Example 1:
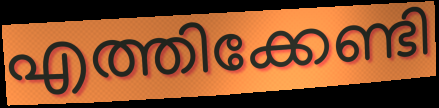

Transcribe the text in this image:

എത്തിക്കേണ്ടി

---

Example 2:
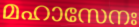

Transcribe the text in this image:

മഹാസേനഃ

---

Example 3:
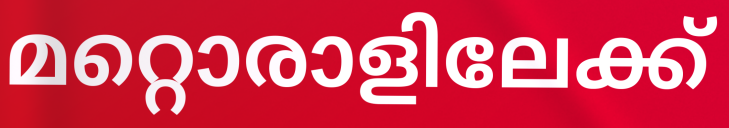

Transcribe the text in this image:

മറ്റൊരാളിലേക്ക്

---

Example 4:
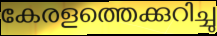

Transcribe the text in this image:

കേരളത്തെക്കുറിച്ചു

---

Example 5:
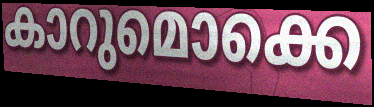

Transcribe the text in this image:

കാറുമൊക്കെ